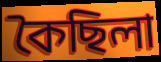
কৈছিলা